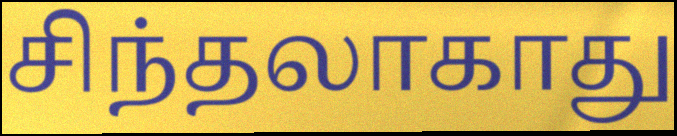
சிந்தலாகாது